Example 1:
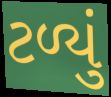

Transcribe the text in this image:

ટળ્યું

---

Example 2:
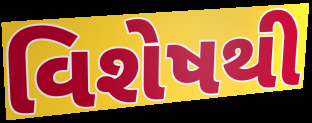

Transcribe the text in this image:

વિશેષથી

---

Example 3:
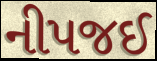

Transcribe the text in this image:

નીપજઈ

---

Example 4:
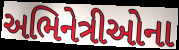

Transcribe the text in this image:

અભિનેત્રીઓના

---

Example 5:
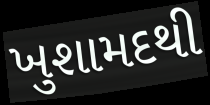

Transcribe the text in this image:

ખુશામદથી